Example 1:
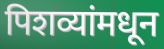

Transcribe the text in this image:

पिशव्यांमधून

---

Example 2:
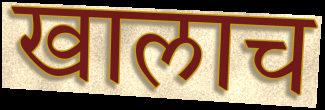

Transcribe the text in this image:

खालाच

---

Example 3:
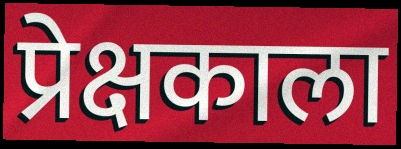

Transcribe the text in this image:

प्रेक्षकाला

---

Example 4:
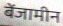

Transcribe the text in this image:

बेंजामीन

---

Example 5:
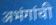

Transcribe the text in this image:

अभंगांची